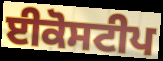
ਈਕੋਸਟੀਪ